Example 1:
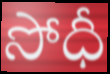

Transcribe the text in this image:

సోధీ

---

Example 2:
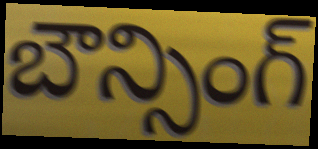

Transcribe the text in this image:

బౌన్సింగ్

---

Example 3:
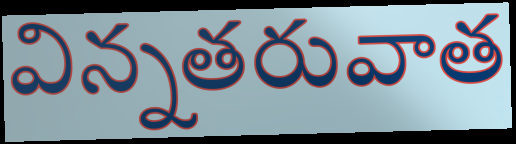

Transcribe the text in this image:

విన్నతరువాత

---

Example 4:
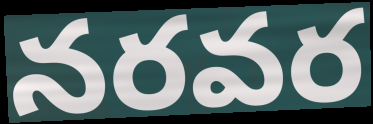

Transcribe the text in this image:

నరవర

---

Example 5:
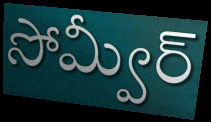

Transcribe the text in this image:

సోమ్వీర్